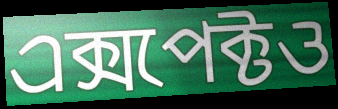
এক্সপেক্টও